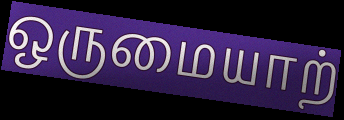
ஒருமையாற்